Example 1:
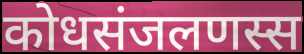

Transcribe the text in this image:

कोधसंजलणस्स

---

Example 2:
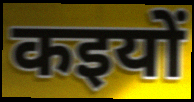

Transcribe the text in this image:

कइयों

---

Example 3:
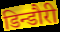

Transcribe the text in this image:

डिन्डौरी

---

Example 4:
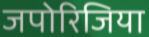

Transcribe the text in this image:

जपोरिजिया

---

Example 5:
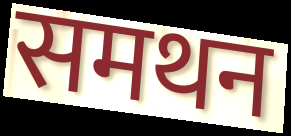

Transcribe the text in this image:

समथन